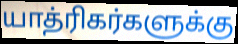
யாத்ரிகர்களுக்கு